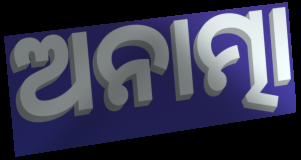
ଅନାତ୍ମା